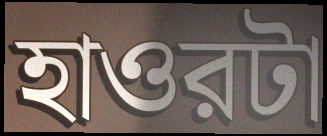
হাওরটা